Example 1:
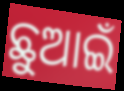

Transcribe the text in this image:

ଛୁଆଇଁ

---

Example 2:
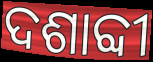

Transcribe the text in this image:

ଦଶାବ୍ଦୀ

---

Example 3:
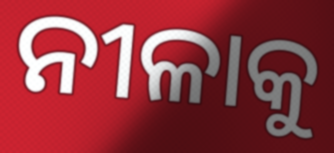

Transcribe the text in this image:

ନୀଳାକୁ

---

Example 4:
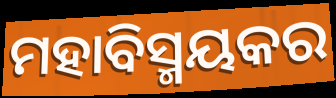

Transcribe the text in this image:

ମହାବିସ୍ମୟକର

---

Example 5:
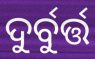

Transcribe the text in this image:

ଦୁର୍ବୁର୍ତ୍ତ